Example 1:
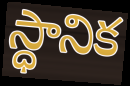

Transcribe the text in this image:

స్ధానిక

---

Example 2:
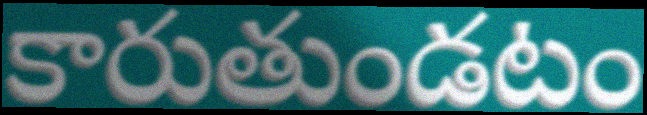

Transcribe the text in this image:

కారుతుండటం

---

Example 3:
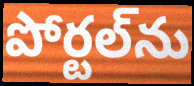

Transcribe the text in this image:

పోర్టల్‌ను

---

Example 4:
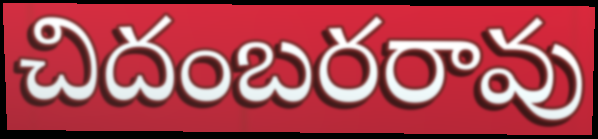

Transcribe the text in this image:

చిదంబరరావు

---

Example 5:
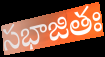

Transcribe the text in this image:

సభాజితః